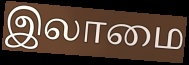
இலாமை